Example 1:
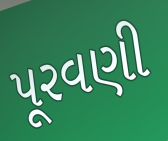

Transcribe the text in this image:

પૂરવણી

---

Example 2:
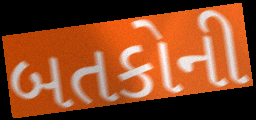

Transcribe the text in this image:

બતકોની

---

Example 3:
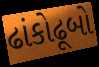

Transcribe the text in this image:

ઢાંકોઢૂબો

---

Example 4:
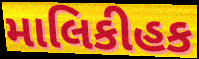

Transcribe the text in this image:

માલિકીહક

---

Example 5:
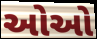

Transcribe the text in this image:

ઓઓ